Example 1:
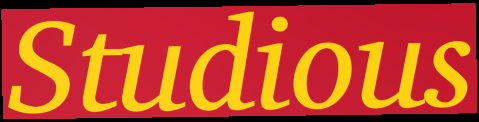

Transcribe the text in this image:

Studious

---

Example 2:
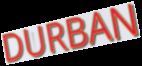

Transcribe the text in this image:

DURBAN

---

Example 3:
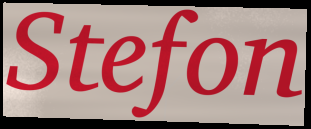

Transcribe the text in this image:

Stefon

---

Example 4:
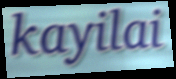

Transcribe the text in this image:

kayilai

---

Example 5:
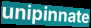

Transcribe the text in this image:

unipinnate